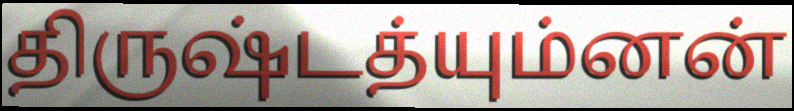
திருஷ்டத்யும்னன்